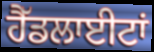
ਹੈੱਡਲਾਈਟਾਂ